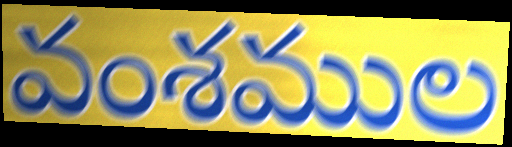
వంశముల